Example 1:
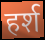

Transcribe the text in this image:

हर्श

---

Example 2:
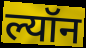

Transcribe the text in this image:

ल्यॉन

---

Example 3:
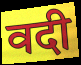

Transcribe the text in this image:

वदी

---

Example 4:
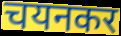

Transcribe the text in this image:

चयनकर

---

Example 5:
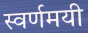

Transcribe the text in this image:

स्वर्णमयी